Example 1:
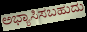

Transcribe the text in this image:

ಅಭ್ಯಾಸಿಸಬಹುದು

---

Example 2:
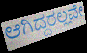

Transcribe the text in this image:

ಆಗಿದ್ದರಲ್ಲವೇ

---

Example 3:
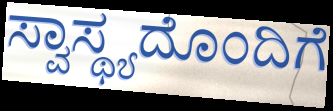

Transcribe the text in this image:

ಸ್ವಾಸ್ಥ್ಯದೊಂದಿಗೆ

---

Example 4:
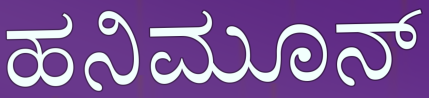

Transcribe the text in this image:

ಹನಿಮೂನ್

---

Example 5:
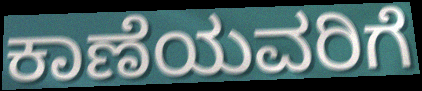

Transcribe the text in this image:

ಕಾಣೆಯವರಿಗೆ